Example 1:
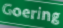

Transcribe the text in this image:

Goering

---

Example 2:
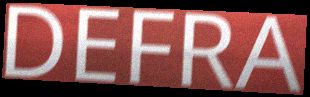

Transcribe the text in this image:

DEFRA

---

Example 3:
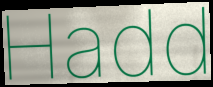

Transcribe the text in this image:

Hadd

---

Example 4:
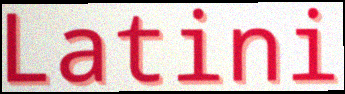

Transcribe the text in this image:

Latini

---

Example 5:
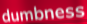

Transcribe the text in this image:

dumbness